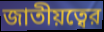
জাতীয়ত্বের